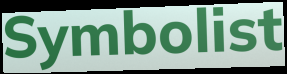
Symbolist